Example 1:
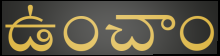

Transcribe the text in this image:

ఉంచాం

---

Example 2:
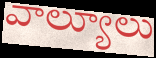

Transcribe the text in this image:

వాల్యూలు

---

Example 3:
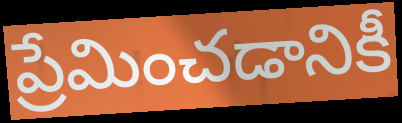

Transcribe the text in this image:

ప్రేమించడానికీ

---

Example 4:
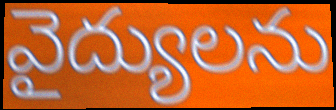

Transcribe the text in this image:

వైద్యులను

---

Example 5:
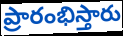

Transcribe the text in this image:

ప్రారంభిస్తారు